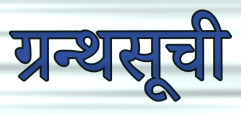
ग्रन्थसूची